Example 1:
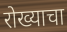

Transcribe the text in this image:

रोख्याचा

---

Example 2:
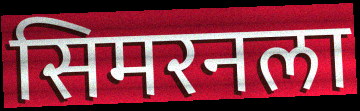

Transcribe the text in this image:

सिमरनला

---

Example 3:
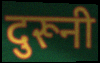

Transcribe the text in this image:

दुरूनी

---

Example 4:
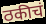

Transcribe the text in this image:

ठकीचं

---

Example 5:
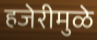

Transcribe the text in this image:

हजेरीमुळे